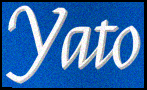
Yato